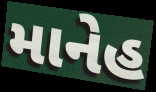
માનેહ